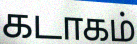
கடாகம்